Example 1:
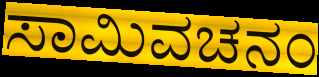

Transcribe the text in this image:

ಸಾಮಿವಚನಂ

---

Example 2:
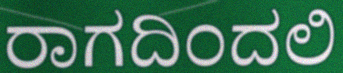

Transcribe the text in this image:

ರಾಗದಿಂದಲಿ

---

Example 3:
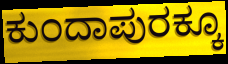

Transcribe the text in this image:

ಕುಂದಾಪುರಕ್ಕೂ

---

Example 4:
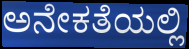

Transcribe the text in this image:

ಅನೇಕತೆಯಲ್ಲಿ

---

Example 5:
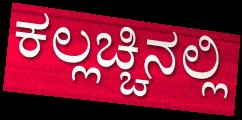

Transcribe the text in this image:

ಕಲ್ಲಚ್ಚಿನಲ್ಲಿ